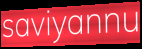
saviyannu